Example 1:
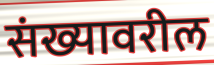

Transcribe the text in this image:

संख्यावरील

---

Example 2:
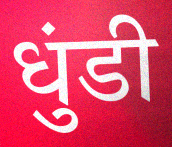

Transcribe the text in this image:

धुंडी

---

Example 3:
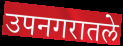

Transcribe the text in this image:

उपनगरातले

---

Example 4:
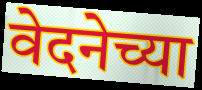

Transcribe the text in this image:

वेदनेच्या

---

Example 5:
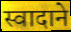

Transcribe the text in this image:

स्वादाने